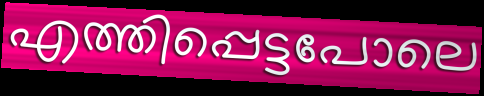
എത്തിപ്പെട്ടപോലെ